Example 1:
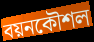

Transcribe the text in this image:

বয়নকৌশল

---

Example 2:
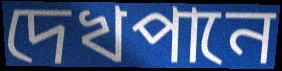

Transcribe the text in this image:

দেখপানে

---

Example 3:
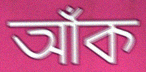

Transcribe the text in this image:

আঁক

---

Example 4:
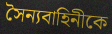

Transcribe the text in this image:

সৈন্যবাহিনীকে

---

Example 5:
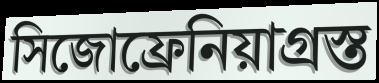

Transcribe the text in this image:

সিজোফ্রেনিয়াগ্রস্ত